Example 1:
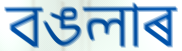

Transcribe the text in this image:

বঙলাৰ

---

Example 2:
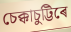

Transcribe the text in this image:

চেক্কাচুট্টিৰে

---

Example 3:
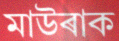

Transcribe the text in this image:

মাউৰাক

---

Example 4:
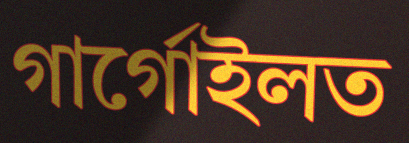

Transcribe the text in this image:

গাৰ্গোইলত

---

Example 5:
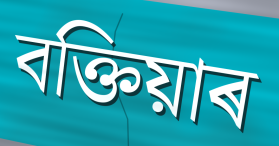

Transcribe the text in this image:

বক্তিয়াৰ